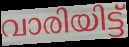
വാരിയിട്ട്